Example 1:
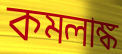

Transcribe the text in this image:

কমলাঙ্ক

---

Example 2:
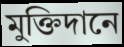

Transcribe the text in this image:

মুক্তিদানে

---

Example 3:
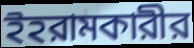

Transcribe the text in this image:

ইহরামকারীর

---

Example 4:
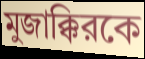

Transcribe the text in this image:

মুজাক্কিরকে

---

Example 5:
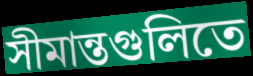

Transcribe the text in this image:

সীমান্তগুলিতে